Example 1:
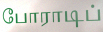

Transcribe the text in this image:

போராடிப்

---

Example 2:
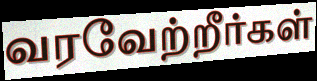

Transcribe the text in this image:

வரவேற்றீர்கள்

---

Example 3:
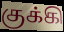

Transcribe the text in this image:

குக்கி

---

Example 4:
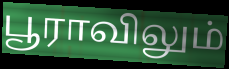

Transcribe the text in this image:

பூராவிலும்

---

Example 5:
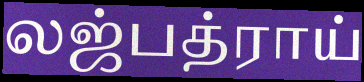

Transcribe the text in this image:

லஜ்பத்ராய்